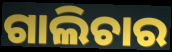
ଗାଲିଚାର